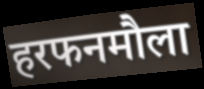
हरफनमौला